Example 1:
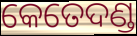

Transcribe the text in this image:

କେତେଦଣ୍ଡ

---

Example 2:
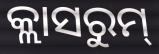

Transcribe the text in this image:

କ୍ଲାସରୁମ୍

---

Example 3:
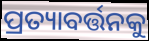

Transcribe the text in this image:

ପ୍ରତ୍ୟାବର୍ତ୍ତନକୁ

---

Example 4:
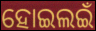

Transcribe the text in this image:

ହୋଇଲଇଁ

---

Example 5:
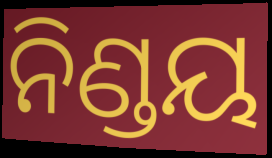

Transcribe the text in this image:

ନିଣ୍ଡୟ